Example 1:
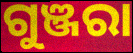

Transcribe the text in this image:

ଗୁଞ୍ଜରା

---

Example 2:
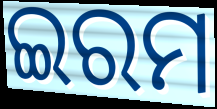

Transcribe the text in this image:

ଇରମ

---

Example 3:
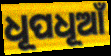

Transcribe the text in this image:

ଧୂପଧୂଆଁ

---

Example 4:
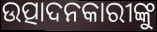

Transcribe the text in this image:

ଉତ୍ପାଦନକାରୀଙ୍କୁ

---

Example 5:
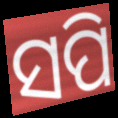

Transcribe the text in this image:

ସପି